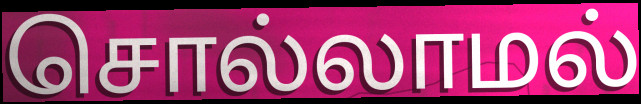
சொல்லாமல்